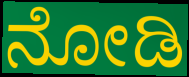
ನೋಡಿ